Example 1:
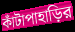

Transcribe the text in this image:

কাঁটাপাহাড়ির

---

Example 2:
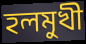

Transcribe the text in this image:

হলমুখী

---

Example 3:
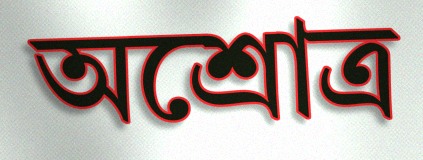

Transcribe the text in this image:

অশ্রোত্র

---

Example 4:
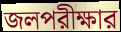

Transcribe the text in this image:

জলপরীক্ষার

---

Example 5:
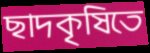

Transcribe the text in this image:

ছাদকৃষিতে